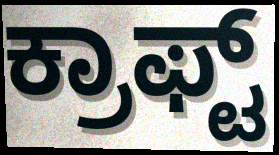
ಕ್ರಾಫ್ಟ್